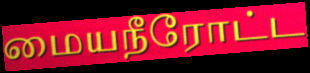
மையநீரோட்ட